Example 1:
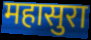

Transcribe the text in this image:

महासुरा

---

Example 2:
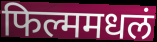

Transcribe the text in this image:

फिल्ममधलं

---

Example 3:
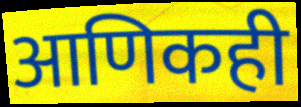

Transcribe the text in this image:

आणिकही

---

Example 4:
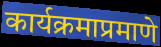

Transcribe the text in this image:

कार्यक्रमाप्रमाणे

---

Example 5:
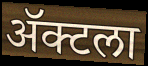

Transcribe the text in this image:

ॲक्टला